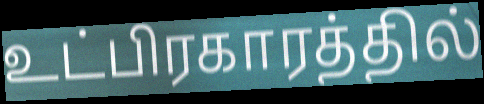
உட்பிரகாரத்தில்